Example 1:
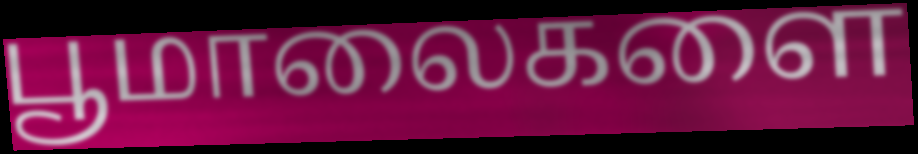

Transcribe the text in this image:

பூமாலைகளை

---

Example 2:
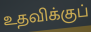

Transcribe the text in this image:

உதவிக்குப்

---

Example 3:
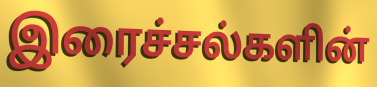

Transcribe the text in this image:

இரைச்சல்களின்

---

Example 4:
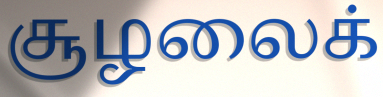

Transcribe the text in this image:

சூழலைக்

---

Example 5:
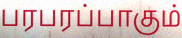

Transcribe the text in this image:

பரபரப்பாகும்